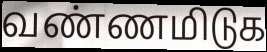
வண்ணமிடுக